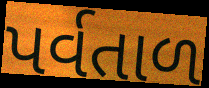
પર્વતાળ